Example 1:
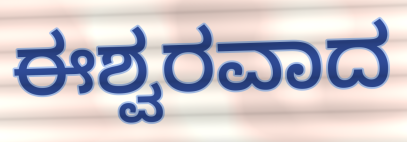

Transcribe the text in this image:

ಈಶ್ವರವಾದ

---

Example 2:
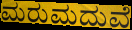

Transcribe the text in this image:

ಮರುಮದುವೆ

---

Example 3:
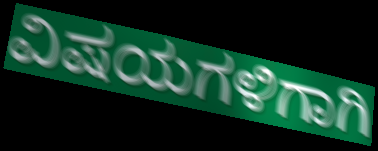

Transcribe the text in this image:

ವಿಷಯಗಳಿಗಾಗಿ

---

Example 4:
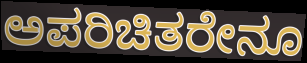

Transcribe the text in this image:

ಅಪರಿಚಿತರೇನೂ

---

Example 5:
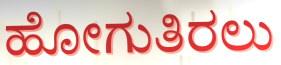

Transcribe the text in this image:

ಹೋಗುತಿರಲು